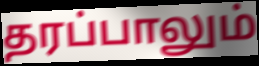
தரப்பாலும்